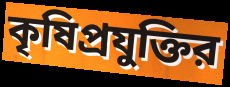
কৃষিপ্রযুক্তির